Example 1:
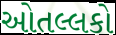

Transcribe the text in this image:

ઓતલ્લકો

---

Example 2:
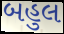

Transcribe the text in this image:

બહુલ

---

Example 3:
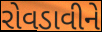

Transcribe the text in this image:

રોવડાવીને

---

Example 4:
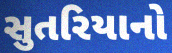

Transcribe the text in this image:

સુતરિયાનો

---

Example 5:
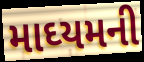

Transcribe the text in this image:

માઘ્યમની